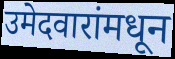
उमेदवारांमधून